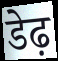
डेढ़